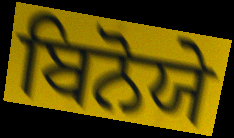
ਬਿਨੋਯੇ